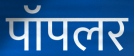
पॉपलर